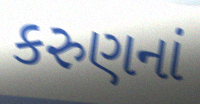
કરુણનાં